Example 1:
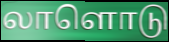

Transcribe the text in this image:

லாளொடு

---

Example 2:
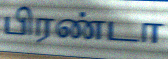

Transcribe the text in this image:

பிரண்டா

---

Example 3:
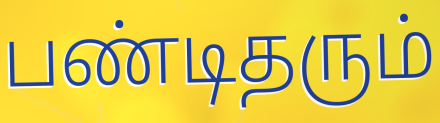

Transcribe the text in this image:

பண்டிதரும்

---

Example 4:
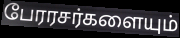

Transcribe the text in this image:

பேரரசர்களையும்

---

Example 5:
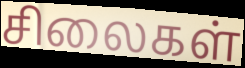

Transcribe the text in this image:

சிலைகள்